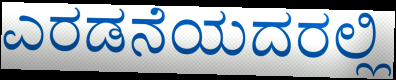
ಎರಡನೆಯದರಲ್ಲಿ